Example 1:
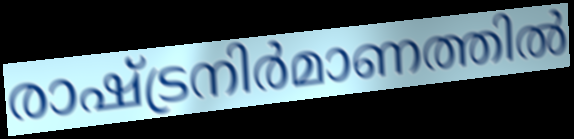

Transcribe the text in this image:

രാഷ്ട്രനിർമാണത്തിൽ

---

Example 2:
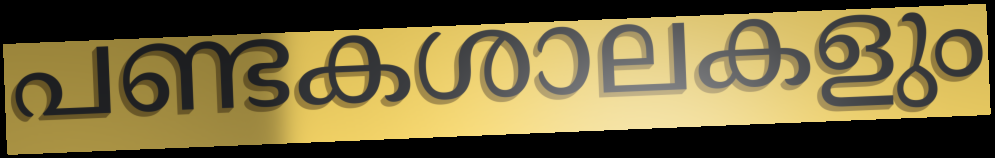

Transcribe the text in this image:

പണ്ടകശാലകളും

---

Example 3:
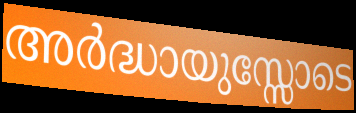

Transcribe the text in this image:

അർദ്ധായുസ്സോടെ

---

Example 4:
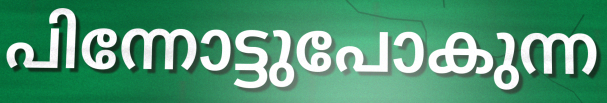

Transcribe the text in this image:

പിന്നോട്ടുപോകുന്ന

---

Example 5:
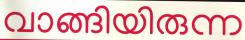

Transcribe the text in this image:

വാങ്ങിയിരുന്ന